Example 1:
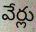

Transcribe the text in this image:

వేర్లు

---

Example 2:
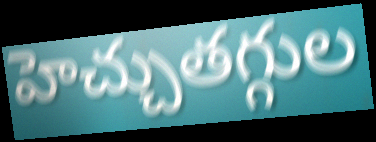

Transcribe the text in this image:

హెచ్చుతగ్గుల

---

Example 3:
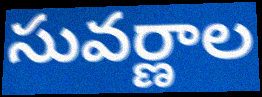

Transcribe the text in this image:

సువర్ణాల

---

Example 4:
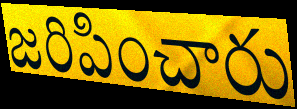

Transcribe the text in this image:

జరిపించారు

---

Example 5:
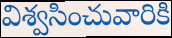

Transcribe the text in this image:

విశ్వసించువారికి